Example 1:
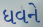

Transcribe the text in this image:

ધવને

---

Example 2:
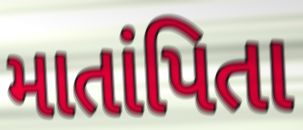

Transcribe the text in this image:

માતાંપિતા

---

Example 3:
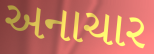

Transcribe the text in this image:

અનાચાર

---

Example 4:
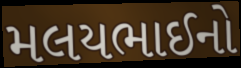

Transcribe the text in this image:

મલયભાઈનો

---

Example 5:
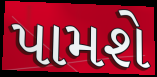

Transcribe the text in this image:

પામશે